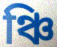
ঞ্চি